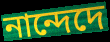
নান্দেদে